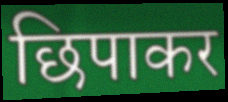
छिपाकर